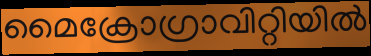
മൈക്രോഗ്രാവിറ്റിയിൽ